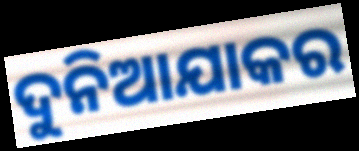
ଦୁନିଆଯାକର